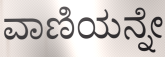
ವಾಣಿಯನ್ನೇ